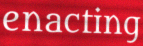
enacting